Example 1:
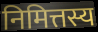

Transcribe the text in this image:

निमित्तस्य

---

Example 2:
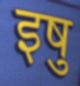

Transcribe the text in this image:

इषु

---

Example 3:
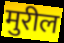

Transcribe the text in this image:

मुरील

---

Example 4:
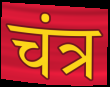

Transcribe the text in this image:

चंत्र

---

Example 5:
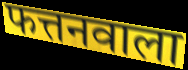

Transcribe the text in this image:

फत्तनवाला